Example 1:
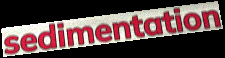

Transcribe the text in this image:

sedimentation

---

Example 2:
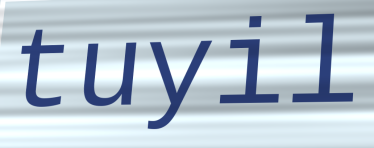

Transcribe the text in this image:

tuyil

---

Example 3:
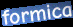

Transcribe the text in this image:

formica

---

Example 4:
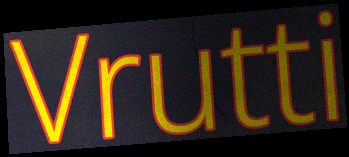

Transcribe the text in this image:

Vrutti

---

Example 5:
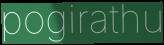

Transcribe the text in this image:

pogirathu